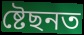
ষ্টেছনত